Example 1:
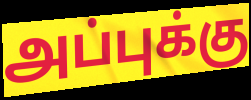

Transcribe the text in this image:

அப்புக்கு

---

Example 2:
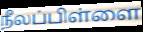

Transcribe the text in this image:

நீலப்பிள்ளை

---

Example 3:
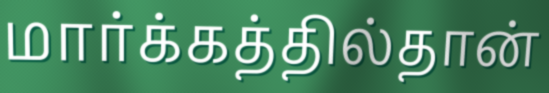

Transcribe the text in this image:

மார்க்கத்தில்தான்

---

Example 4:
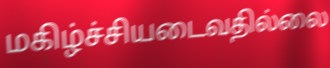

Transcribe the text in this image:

மகிழ்ச்சியடைவதில்லை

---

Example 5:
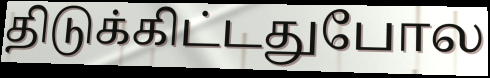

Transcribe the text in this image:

திடுக்கிட்டதுபோல